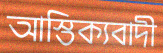
আস্তিক্যবাদী